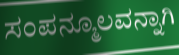
ಸಂಪನ್ಮೂಲವನ್ನಾಗಿ